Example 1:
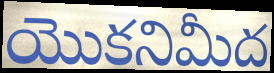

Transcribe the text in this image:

యొకనిమీద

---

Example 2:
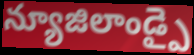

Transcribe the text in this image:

న్యూజిలాండ్పై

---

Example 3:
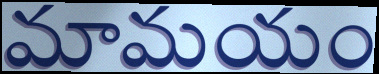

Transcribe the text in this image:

మామయం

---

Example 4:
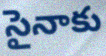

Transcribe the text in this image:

సైనాకు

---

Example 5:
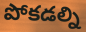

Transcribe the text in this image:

పోకడల్ని